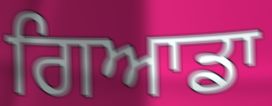
ਗਿਆਡਾ